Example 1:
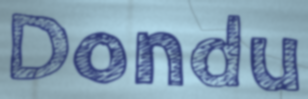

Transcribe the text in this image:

Dondu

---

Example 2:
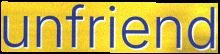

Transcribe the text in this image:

unfriend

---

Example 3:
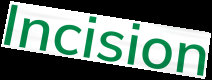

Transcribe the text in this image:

Incision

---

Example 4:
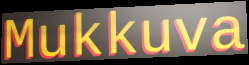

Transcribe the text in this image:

Mukkuva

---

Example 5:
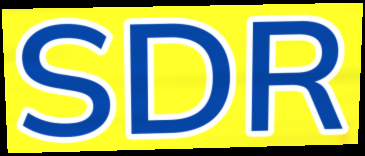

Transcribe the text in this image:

SDR